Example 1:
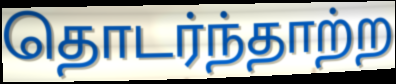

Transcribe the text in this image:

தொடர்ந்தாற்ற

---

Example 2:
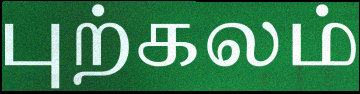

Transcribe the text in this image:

புற்கலம்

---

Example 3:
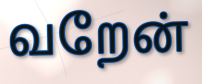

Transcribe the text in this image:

வறேன்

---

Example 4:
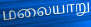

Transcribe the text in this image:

மலையாறு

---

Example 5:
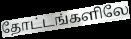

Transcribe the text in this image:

தோட்டங்களிலே